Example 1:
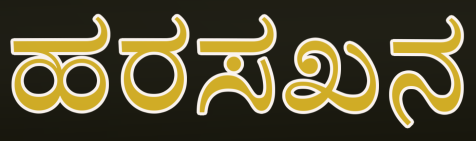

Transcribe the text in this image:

ಹರಸಖನ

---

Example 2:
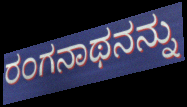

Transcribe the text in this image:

ರಂಗನಾಥನನ್ನು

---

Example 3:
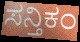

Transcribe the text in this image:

ಸನ್ತಿಕಂ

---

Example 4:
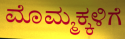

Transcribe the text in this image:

ಮೊಮ್ಮಕ್ಕಳಿಗೆ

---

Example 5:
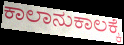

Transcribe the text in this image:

ಕಾಲಾನುಕಾಲಕ್ಕೆ